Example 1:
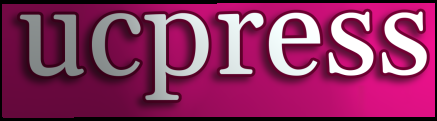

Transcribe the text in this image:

ucpress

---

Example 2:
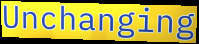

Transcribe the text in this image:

Unchanging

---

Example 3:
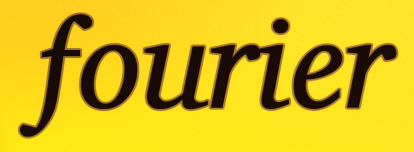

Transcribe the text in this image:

fourier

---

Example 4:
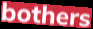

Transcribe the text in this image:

bothers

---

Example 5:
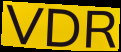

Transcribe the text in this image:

VDR